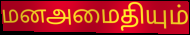
மனஅமைதியும்